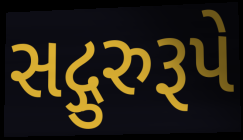
સદ્ગુરુરૂપે